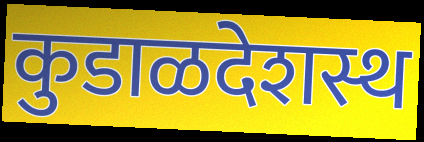
कुडाळदेशस्थ